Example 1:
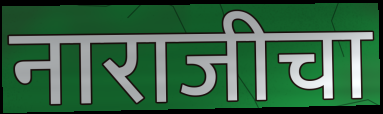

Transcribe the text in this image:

नाराजीचा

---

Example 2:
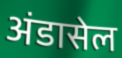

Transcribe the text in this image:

अंडासेल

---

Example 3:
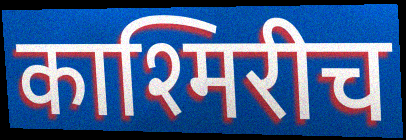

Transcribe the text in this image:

काश्मिरीच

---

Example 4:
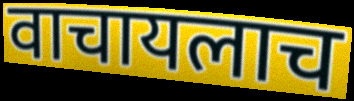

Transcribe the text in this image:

वाचायलाच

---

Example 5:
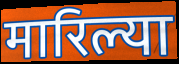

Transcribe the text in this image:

मारिल्या